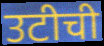
उटीची